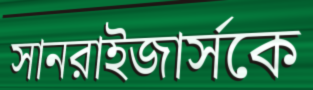
সানরাইজার্সকে